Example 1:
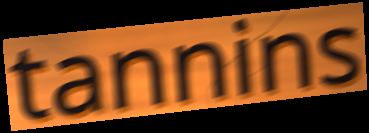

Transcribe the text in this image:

tannins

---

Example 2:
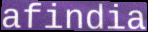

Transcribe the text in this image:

afindia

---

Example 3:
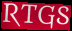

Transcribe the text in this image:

RTGS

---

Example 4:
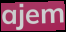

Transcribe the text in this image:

ajem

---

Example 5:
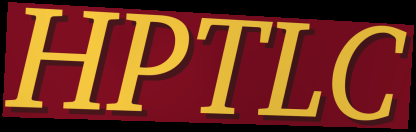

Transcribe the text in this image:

HPTLC